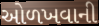
ઓળખવાની